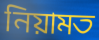
নিয়ামত